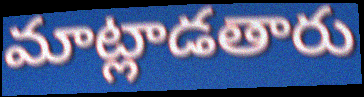
మాట్లాడతారు